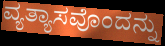
ವ್ಯತ್ಯಾಸವೊಂದನ್ನು